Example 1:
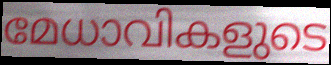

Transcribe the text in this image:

മേധാവികളുടെ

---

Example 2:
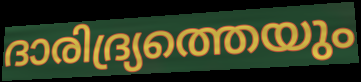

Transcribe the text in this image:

ദാരിദ്ര്യത്തെയും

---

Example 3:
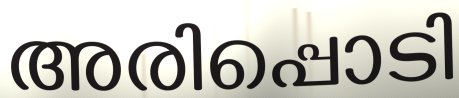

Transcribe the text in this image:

അരിപ്പൊടി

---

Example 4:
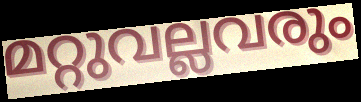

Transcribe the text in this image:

മറ്റുവല്ലവരും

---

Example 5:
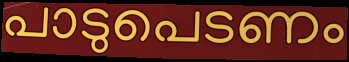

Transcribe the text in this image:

പാടുപെടണം